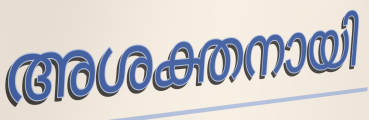
അശക്തനായി